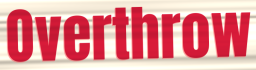
Overthrow